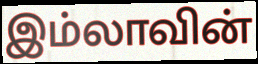
இம்லாவின்